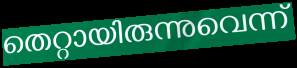
തെറ്റായിരുന്നുവെന്ന്